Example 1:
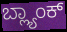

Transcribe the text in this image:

ಬ್ಲ್ಯಾಂಕ್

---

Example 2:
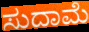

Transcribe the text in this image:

ಸುದಾಮೆ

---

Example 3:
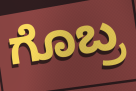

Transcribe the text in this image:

ಗೊಬ್ರ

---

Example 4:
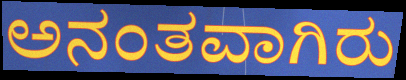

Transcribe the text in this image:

ಅನಂತವಾಗಿರು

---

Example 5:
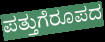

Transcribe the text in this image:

ಪತ್ತುಗೆರೂಪದ